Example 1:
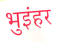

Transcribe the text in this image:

भुइंहर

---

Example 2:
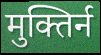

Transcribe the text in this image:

मुक्तिर्न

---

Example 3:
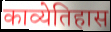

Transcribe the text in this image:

काव्येतिहास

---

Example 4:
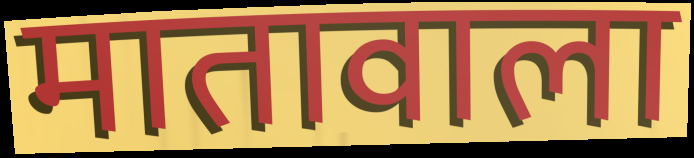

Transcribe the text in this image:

मातावाला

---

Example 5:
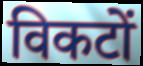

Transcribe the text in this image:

विकटों